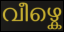
വീഴ്കെ